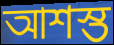
আশস্ত